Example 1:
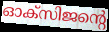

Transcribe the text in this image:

ഓക്സിജന്റെ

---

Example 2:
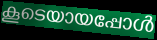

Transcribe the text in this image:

കൂടെയായപ്പോൾ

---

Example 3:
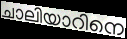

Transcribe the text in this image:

ചാലിയാറിനെ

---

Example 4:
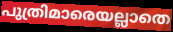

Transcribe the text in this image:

പുത്രിമാരെയല്ലാതെ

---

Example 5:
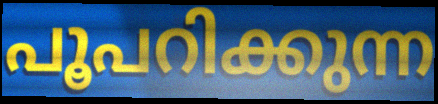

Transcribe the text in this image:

പൂപറിക്കുന്ന